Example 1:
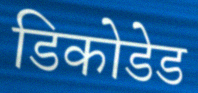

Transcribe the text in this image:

डिकोडेड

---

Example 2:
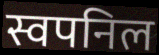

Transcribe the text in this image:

स्वपनिल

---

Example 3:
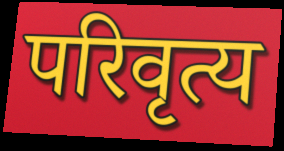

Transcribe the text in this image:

परिवृत्य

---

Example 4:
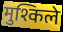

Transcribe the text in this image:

मुश्किले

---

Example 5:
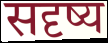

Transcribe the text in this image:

सदृष्य